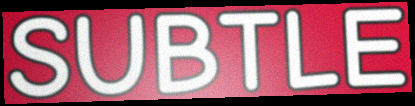
SUBTLE